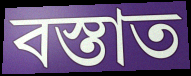
বস্তাত